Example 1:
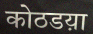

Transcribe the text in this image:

कोठडय़ा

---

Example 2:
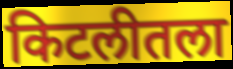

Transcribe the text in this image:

किटलीतला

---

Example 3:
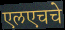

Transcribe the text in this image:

एलएचचे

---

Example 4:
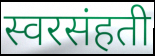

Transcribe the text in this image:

स्वरसंहती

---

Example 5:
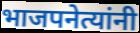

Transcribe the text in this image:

भाजपनेत्यांनी